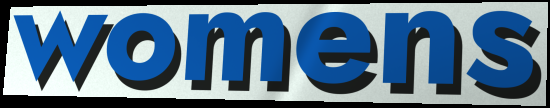
womens